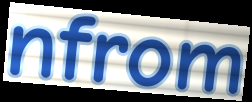
nfrom